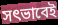
সৎভাবেই